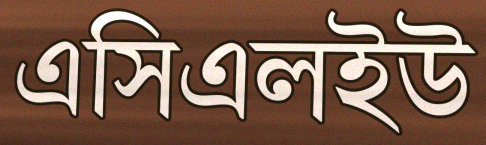
এসিএলইউ